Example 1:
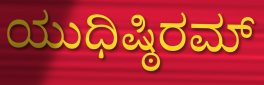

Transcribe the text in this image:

ಯುಧಿಷ್ಠಿರಮ್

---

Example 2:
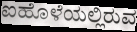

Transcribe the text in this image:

ಐಹೊಳೆಯಲ್ಲಿರುವ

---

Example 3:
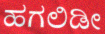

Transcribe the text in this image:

ಹಗಲಿಡೀ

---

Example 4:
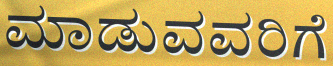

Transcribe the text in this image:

ಮಾಡುವವರಿಗೆ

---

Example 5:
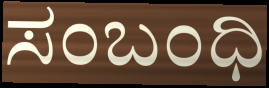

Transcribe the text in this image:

ಸಂಬಂಧಿ